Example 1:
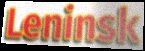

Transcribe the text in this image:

Leninsk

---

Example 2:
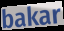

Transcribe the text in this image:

bakar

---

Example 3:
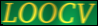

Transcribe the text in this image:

LOOCV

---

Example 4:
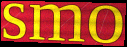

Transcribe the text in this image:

smo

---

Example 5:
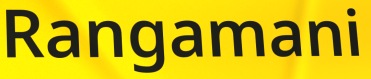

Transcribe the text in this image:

Rangamani